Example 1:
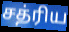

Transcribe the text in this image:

சத்ரிய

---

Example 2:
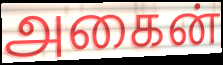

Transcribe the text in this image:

அகைன்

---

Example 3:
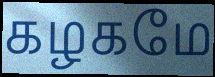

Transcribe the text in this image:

கழகமே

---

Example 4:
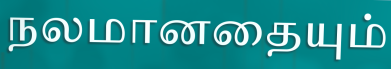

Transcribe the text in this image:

நலமானதையும்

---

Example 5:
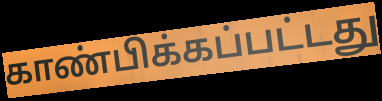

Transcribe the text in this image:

காண்பிக்கப்பட்டது